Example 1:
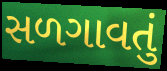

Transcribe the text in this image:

સળગાવતું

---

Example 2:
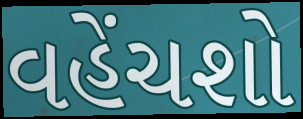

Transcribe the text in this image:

વહેંચશો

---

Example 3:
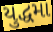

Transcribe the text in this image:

યુદ્ધમા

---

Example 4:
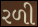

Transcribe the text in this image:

રળી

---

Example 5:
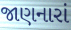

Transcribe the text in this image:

જાણનારાં